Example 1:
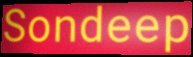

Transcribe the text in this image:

Sondeep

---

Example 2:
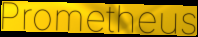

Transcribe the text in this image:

Prometheus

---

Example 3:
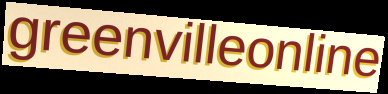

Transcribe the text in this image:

greenvilleonline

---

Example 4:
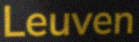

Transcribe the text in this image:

Leuven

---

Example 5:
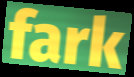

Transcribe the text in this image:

fark